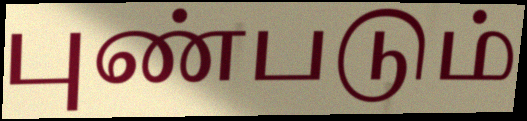
புண்படும்